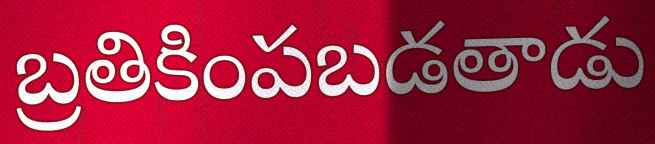
బ్రతికింపబడతాడు